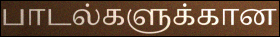
பாடல்களுக்கான